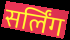
सर्लिंग